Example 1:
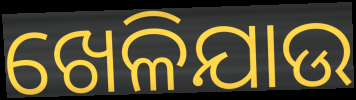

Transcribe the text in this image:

ଖେଳିଯାଉ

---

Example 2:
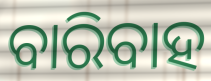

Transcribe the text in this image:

ବାରିବାହ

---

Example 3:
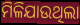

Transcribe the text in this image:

ମିଳିଯାଉଥିଲା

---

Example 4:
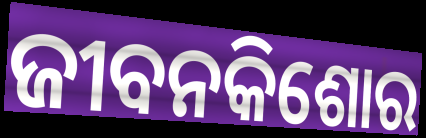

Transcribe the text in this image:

ଜୀବନକିଶୋର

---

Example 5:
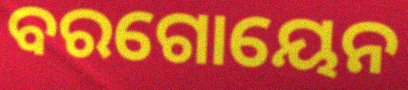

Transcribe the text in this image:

ବରଗୋୟେନ